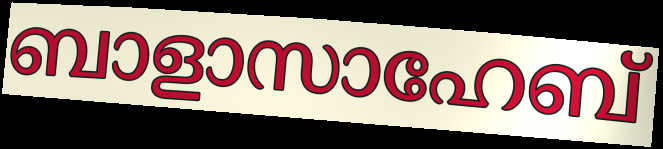
ബാളാസാഹേബ്